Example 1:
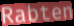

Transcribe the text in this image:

Rabten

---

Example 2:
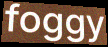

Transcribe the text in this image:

foggy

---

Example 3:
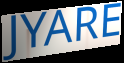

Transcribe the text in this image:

JYARE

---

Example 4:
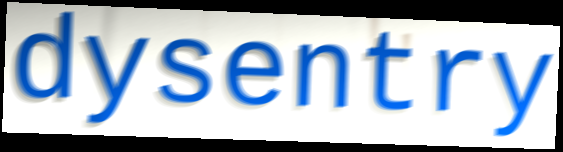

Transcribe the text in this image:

dysentry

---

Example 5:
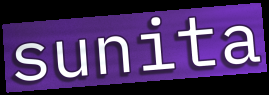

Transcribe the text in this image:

sunita